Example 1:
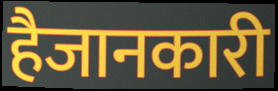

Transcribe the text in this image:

हैजानकारी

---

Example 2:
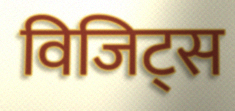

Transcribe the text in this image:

विजिट्स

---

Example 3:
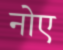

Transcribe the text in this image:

नोए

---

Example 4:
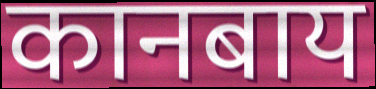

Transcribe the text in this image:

कानबाय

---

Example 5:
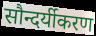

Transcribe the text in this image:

सौन्दर्यीकरण